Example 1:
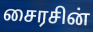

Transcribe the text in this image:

சைரசின்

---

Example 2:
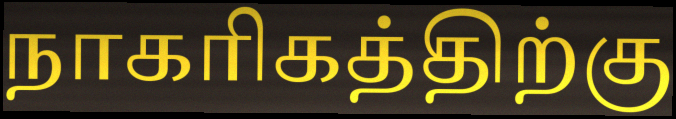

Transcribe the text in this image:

நாகரிகத்திற்கு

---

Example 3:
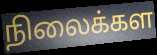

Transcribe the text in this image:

நிலைக்கள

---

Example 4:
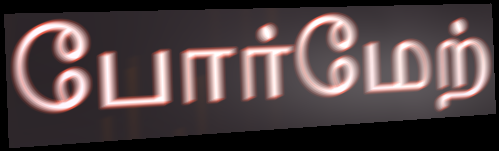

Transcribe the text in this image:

போர்மேற்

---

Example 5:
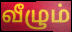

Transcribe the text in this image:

வீழும்